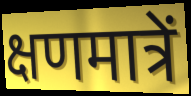
क्षणमात्रें